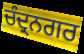
ਚੰਦ੍ਰਨਗਰ